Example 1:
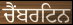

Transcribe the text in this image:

ਚੈਂਬਰਟਿਨ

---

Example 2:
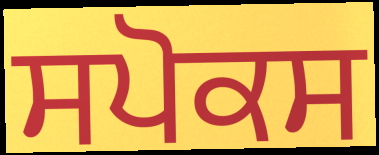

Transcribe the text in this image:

ਸਪੋਕਸ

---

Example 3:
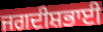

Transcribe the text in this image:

ਜਗਦੀਸ਼ਭਾਈ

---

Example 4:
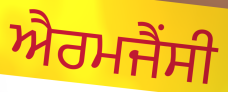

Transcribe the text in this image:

ਐਰਮਜੈਂਸੀ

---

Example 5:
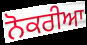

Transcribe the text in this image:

ਨੋਕਰੀਆ